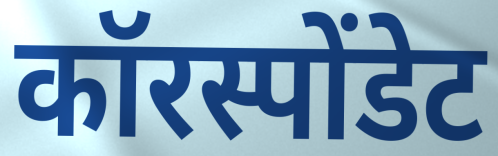
कॉरस्पोंडेट